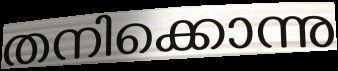
തനിക്കൊന്നു